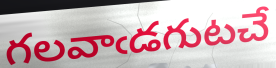
గలవాఁడగుటచే